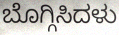
ಬೊಗ್ಗಿಸಿದಳು